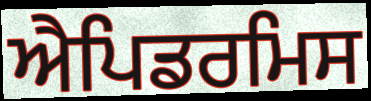
ਐਪਿਡਰਮਿਸ